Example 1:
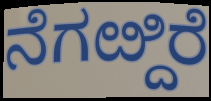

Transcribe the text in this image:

ನೆಗೞ್ದಿರೆ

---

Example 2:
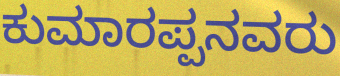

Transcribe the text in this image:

ಕುಮಾರಪ್ಪನವರು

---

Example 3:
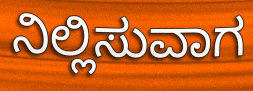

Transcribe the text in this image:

ನಿಲ್ಲಿಸುವಾಗ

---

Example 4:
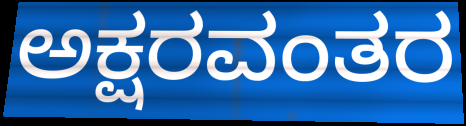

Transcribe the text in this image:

ಅಕ್ಷರವಂತರ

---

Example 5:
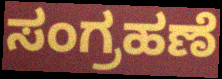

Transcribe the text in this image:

ಸಂಗ್ರಹಣೆ